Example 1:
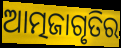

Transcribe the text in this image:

ଆତ୍ମଜାଗୃତିର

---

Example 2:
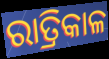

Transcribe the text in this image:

ରାତ୍ରିକାଳ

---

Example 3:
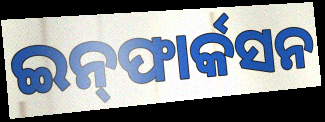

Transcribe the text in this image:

ଇନ୍‌ଫାର୍କସନ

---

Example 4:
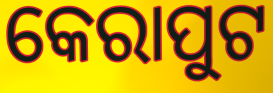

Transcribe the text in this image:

କେରାପୁଟ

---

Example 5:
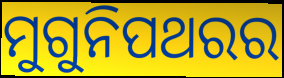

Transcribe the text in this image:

ମୁଗୁନିପଥରର